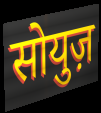
सोयुज़